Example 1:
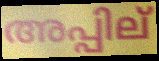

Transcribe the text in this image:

അപ്പില്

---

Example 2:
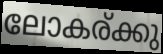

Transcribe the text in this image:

ലോകര്ക്കു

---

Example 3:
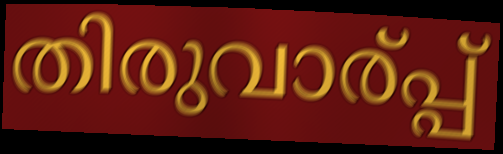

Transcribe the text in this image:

തിരുവാര്പ്പ്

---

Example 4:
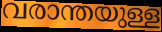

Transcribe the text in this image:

വരാന്തയുള്ള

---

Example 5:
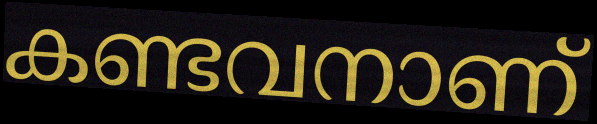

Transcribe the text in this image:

കണ്ടവനാണ്